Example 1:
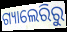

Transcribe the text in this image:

ଗ୍ୟାଲେରିରୁ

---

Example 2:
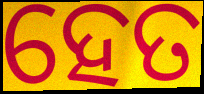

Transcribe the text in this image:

ହେତ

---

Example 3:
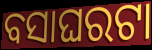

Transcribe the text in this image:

ବସାଘରଟା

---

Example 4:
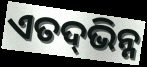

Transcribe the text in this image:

ଏତଦ୍‍ଭିନ୍ନ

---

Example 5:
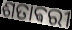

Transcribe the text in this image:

ଶତାଵରୀ